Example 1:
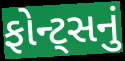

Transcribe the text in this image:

ફોન્ટ્સનું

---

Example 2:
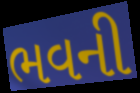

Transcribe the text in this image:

ભવની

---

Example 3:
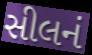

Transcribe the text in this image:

સીલનં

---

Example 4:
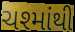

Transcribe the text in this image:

ચશ્માંથી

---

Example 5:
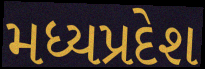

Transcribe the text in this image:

મધ્યપ્રદેશ